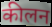
कीलन